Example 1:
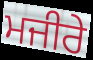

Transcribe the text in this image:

ਮਜੀਰੇ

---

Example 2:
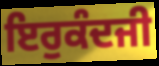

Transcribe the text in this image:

ਇਰੁਕੰਦਜੀ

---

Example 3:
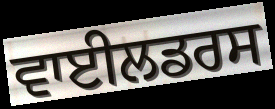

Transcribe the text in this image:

ਵਾਈਲਡਰਸ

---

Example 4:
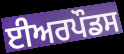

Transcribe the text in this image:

ਈਅਰਪੌਡਸ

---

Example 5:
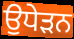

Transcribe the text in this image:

ਉਧੇੜਨ